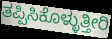
ತಪ್ಪಿಸಿಕೊಳ್ಳುತ್ತೀರಿ